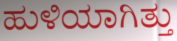
ಹುಳಿಯಾಗಿತ್ತು